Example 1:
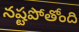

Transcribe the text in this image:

నష్టపోతోంది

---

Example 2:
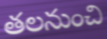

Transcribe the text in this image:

తలనుంచి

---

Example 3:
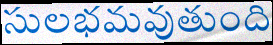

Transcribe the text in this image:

సులభమవుతుంది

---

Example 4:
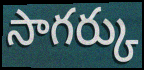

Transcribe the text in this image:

సాగర్కు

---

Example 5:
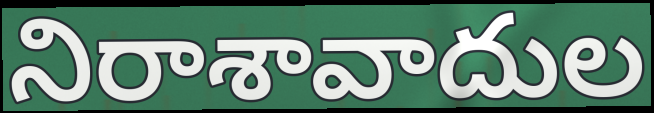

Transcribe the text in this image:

నిరాశావాదుల